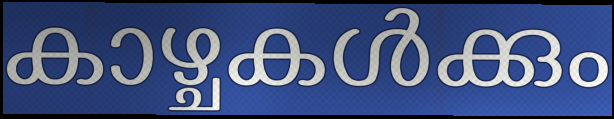
കാഴ്ചകൾക്കും